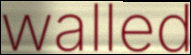
walled